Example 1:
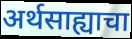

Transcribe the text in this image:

अर्थसाह्याचा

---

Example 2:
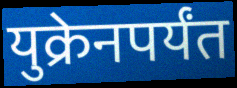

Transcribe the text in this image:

युक्रेनपर्यंत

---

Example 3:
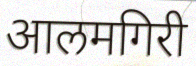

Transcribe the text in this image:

आलमगिरी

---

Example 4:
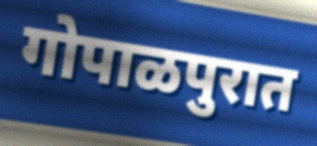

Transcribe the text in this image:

गोपाळपुरात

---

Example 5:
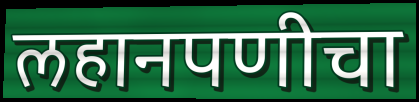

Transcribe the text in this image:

लहानपणीचा